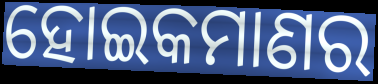
ହୋଇକମାଣର